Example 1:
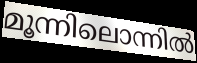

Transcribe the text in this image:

മൂന്നിലൊന്നിൽ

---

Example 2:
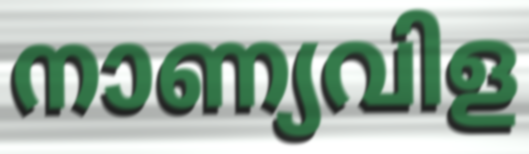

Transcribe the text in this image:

നാണ്യവിള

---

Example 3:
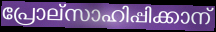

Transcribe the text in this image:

പ്രോല്സാഹിപ്പിക്കാന്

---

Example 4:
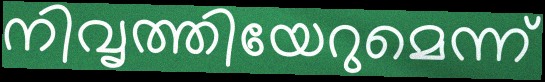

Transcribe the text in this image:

നിവൃത്തിയേറുമെന്ന്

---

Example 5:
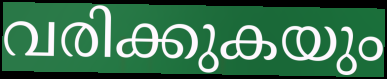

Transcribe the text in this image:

വരിക്കുകയും